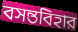
বসন্তবিহার